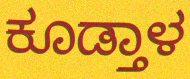
ಕೂಡ್ತಾಳ